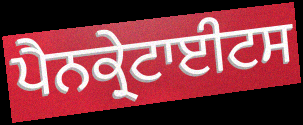
ਪੈਨਕ੍ਰੇਟਾਈਟਸ